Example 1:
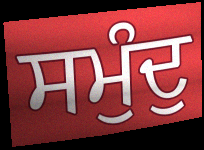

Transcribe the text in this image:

ਸਮੁੰਦੁ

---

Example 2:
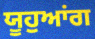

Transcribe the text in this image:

ਯੂਹੁਆਂਗ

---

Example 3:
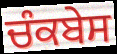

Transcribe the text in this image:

ਚੰਕਬੇਸ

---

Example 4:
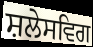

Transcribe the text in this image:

ਸ਼ਲੇਸਵਿਗ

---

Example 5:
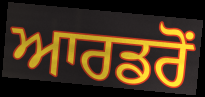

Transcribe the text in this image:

ਆਰਡਰੋਂ